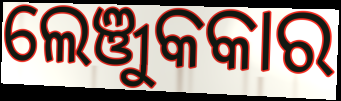
ଲେଞ୍ଜୁକକାର